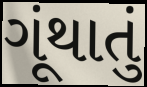
ગૂંથાતું